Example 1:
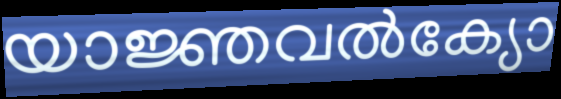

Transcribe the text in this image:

യാജ്ഞവൽക്യോ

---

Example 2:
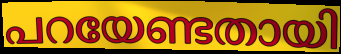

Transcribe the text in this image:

പറയേണ്ടതായി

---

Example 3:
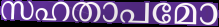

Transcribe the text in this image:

സഹതാപമോ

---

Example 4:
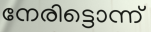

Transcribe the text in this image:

നേരിട്ടൊന്ന്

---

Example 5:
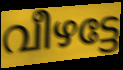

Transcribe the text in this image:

വീഴട്ടേ